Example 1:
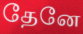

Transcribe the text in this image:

தேனே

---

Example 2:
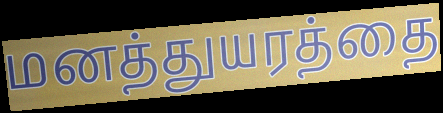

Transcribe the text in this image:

மனத்துயரத்தை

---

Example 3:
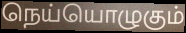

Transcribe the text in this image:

நெய்யொழுகும்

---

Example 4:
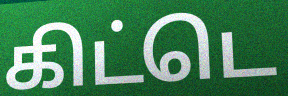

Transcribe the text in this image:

கிட்டெ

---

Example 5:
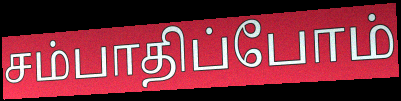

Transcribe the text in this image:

சம்பாதிப்போம்